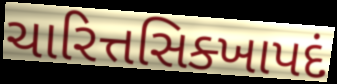
ચારિત્તસિક્ખાપદં